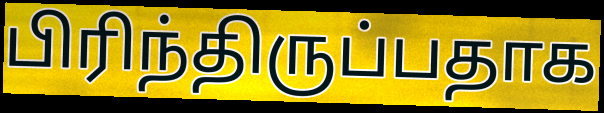
பிரிந்திருப்பதாக